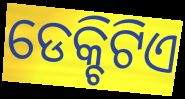
ଡେକ୍ଚିଟିଏ